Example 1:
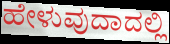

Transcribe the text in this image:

ಹೇಳುವುದಾದಲ್ಲಿ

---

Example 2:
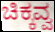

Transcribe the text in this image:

ಚಿಕ್ಕವ್ವ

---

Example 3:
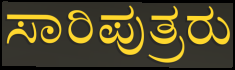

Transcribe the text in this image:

ಸಾರಿಪುತ್ರರು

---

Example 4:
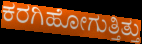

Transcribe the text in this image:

ಕರಗಿಹೋಗುತ್ತಿತ್ತು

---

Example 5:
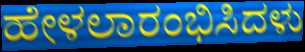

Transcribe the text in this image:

ಹೇಳಲಾರಂಭಿಸಿದಳು